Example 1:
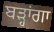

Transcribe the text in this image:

ਬੜ੍ਹਾਂਗਾ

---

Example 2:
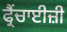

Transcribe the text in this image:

ਫ੍ਰੈਂਚਾਈਜ਼ੀ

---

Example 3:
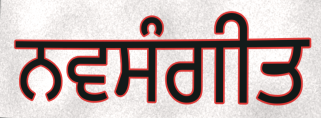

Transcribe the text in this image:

ਨਵਸੰਗੀਤ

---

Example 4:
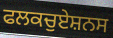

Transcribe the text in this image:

ਫਲਕਚੁਏਸ਼ਨਸ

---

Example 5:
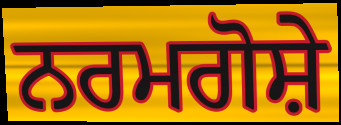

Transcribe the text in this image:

ਨਰਮਗੋਸ਼ੇ